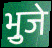
भु॒जे